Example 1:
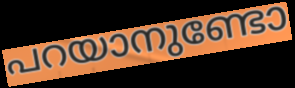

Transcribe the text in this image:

പറയാനുണ്ടോ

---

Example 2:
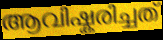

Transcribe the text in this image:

ആവിഷ്കരിച്ചത്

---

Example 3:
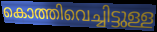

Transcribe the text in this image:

കൊത്തിവെച്ചിട്ടുള്ള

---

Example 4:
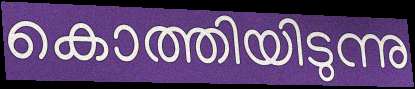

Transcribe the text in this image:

കൊത്തിയിടുന്നു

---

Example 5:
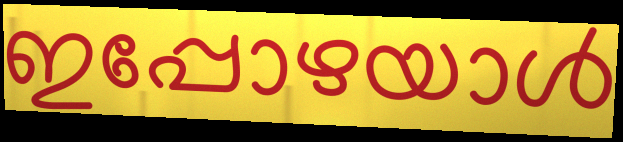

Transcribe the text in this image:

ഇപ്പോഴയാൾ